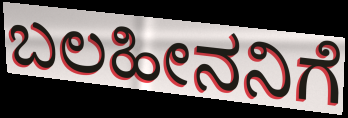
ಬಲಹೀನನಿಗೆ